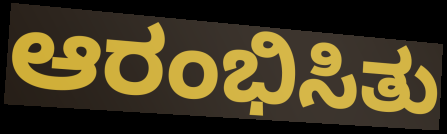
ಆರಂಭಿಸಿತು